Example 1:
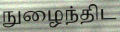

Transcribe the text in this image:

நுழைந்திட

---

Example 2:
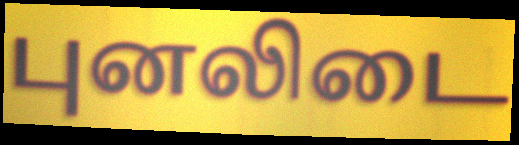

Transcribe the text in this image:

புனலிடை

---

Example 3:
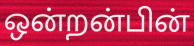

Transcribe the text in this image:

ஒன்றன்பின்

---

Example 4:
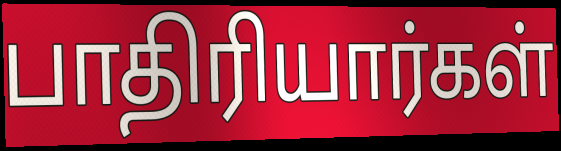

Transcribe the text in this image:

பாதிரியார்கள்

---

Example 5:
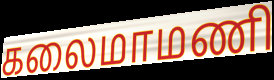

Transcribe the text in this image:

கலைமாமணி